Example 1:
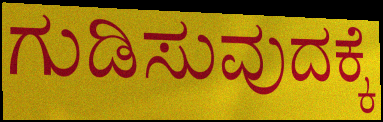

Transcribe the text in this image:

ಗುಡಿಸುವುದಕ್ಕೆ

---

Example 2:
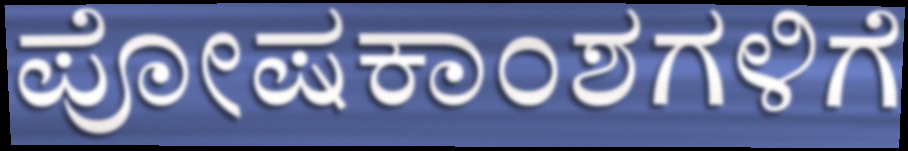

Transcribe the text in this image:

ಪೋಷಕಾಂಶಗಳಿಗೆ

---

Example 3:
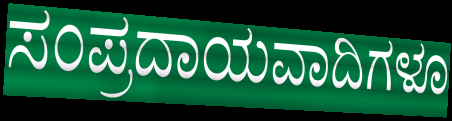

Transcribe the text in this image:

ಸಂಪ್ರದಾಯವಾದಿಗಳೂ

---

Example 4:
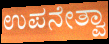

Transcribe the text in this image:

ಉಪನೇತ್ವಾ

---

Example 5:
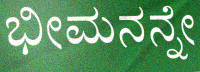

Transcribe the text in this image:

ಭೀಮನನ್ನೇ